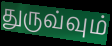
துருவ்வும்